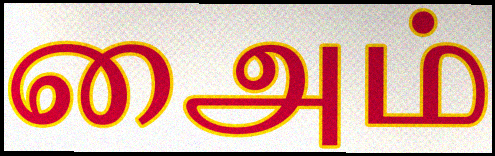
அைம்